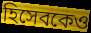
হিসেবকেও